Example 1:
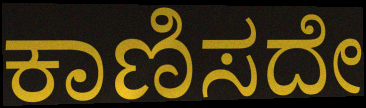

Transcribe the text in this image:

ಕಾಣಿಸದೇ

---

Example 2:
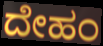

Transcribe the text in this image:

ದೇಹಂ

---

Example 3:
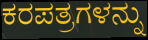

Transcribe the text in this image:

ಕರಪತ್ರಗಳನ್ನು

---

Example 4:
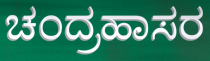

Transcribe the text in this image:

ಚಂದ್ರಹಾಸರ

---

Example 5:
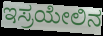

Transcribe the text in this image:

ಇಸ್ರಯೇಲಿನ